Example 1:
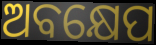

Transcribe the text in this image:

ଅବକ୍ଷେପ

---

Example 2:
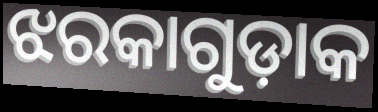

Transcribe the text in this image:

ଝରକାଗୁଡ଼ାକ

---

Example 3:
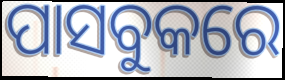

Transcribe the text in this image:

ପାସବୁକରେ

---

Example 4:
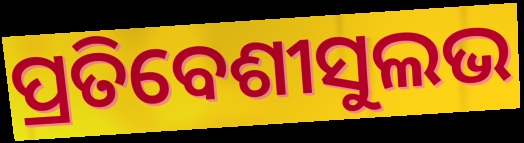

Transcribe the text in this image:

ପ୍ରତିବେଶୀସୁଲଭ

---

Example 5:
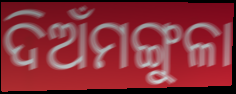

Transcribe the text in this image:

ଦିଅଁମଙ୍ଗୁଳା